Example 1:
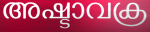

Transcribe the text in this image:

അഷ്ടാവക്ര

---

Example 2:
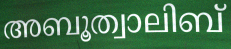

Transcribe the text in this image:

അബൂത്വാലിബ്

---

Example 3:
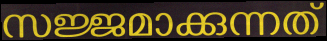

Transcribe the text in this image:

സജ്ജമാക്കുന്നത്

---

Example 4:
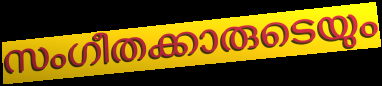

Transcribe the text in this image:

സംഗീതക്കാരുടെയും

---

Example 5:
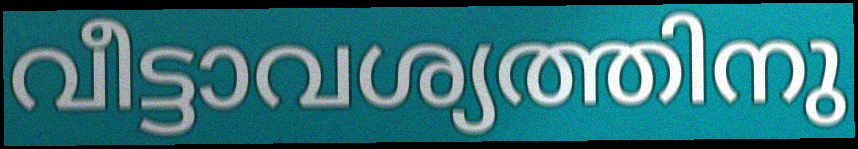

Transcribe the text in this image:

വീട്ടാവശ്യത്തിനു